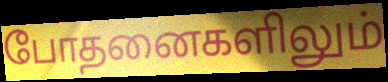
போதனைகளிலும்